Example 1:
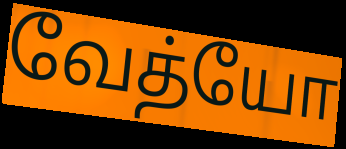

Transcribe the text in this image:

வேத்யோ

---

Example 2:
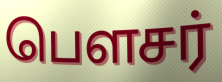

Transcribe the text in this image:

பௌசர்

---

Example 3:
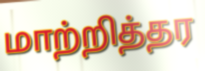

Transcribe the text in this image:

மாற்றித்தர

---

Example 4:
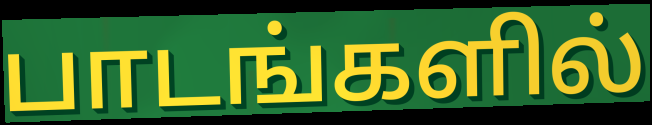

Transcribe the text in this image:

பாடங்களில்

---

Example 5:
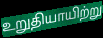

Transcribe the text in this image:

உறுதியாயிற்று